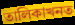
তালিকাখনত